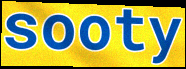
sooty